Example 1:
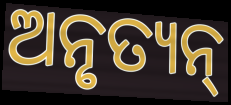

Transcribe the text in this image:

ଅନୃତ୍ୟନ୍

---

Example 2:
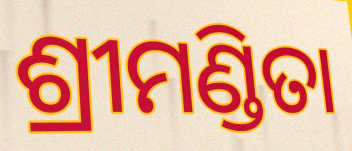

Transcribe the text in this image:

ଶ୍ରୀମଣ୍ଡିତା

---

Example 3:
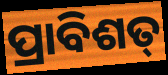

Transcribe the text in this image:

ପ୍ରାବିଶତ୍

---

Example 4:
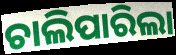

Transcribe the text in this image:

ଚାଲିପାରିଲା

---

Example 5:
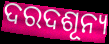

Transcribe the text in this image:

ଦରଦଶୂନ୍ୟ